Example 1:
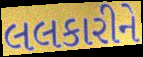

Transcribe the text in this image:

લલકારીને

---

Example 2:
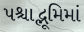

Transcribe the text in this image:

પશ્ચાદ્ભૂમિમાં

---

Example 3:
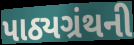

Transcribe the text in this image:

પાઠ્યગ્રંથની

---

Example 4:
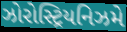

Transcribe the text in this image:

ઝોરોસ્ટ્રિયનિઝમે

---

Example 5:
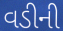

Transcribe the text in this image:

વડીની